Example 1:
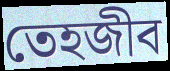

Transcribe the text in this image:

তেহজীব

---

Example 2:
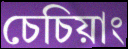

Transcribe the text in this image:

চেচিয়াং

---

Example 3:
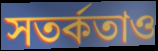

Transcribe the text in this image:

সতর্কতাও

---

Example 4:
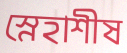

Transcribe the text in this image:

স্নেহাশীষ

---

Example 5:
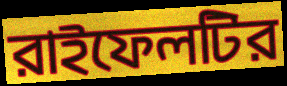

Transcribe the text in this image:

রাইফেলটির